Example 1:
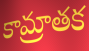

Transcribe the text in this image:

కామ్రాతక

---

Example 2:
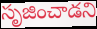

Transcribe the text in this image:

సృజించాడని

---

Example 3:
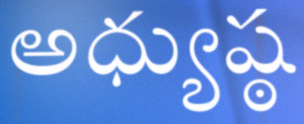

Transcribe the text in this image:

అధ్యుష్ఠ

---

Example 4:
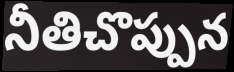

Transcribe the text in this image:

నీతిచొప్పున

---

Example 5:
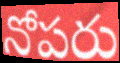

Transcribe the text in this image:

నోపరు